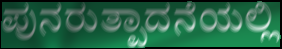
ಪುನರುತ್ಪಾದನೆಯಲ್ಲಿ